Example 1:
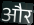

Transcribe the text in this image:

और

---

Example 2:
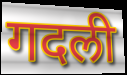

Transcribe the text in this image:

गदली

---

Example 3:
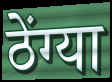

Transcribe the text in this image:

ठेंग्या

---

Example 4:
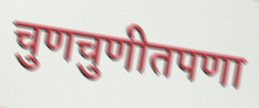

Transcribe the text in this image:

चुणचुणीतपणा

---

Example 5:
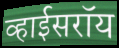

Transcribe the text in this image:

व्हाईसरॉय